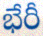
భేరీ